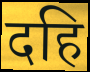
दहि